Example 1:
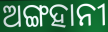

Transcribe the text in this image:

ଅଙ୍ଗହାନୀ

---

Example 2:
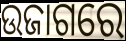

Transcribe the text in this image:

ଉଜାଗରେ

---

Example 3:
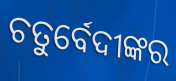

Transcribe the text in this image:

ଚତୁର୍ବେଦୀଙ୍କର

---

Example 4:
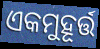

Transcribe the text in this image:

ଏକମୁହୂର୍ତ୍ତ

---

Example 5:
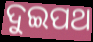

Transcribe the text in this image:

ଦୁଇପଥ